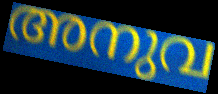
അനുവ